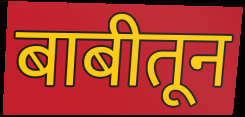
बाबीतून